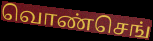
வொண்செங்